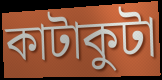
কাটাকুটা